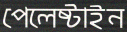
পেলেষ্টাইন